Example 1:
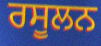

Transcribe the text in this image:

ਰਸੂਲਨ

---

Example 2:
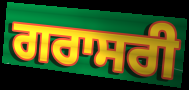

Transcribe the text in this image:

ਗਰਾਸਰੀ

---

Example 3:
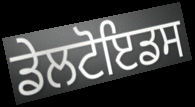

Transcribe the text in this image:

ਡੇਲਟੋਇਡਸ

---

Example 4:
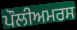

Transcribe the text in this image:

ਪੌਲੀਅਮਰਸ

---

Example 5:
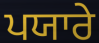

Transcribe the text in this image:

ਪਯਾਰੇ